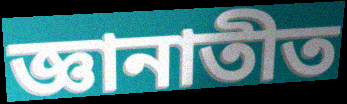
জ্ঞানাতীত